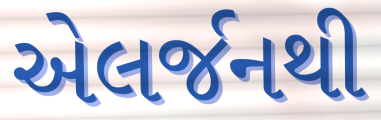
એલર્જનથી